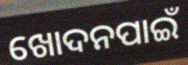
ଖୋଦନପାଇଁ